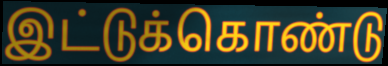
இட்டுக்கொண்டு